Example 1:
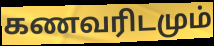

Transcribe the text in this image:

கணவரிடமும்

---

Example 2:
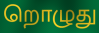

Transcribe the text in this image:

றொழுது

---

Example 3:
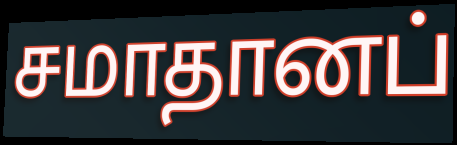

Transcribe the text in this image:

சமாதானப்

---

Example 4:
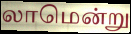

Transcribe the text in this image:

லாமென்று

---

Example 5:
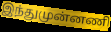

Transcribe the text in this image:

இந்துமுன்னணி